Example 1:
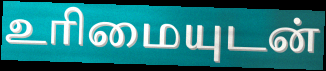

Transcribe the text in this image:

உரிமையுடன்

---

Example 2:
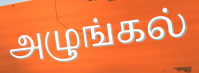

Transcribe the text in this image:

அழுங்கல்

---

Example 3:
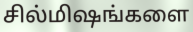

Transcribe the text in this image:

சில்மிஷங்களை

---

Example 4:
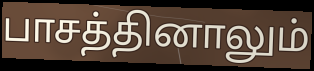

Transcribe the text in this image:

பாசத்தினாலும்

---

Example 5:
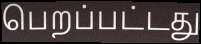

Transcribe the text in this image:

பெறப்பட்டது